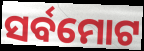
ସର୍ବମୋଟ